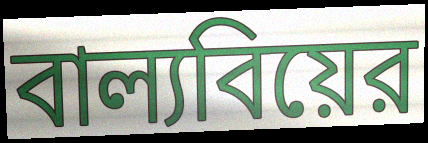
বাল্যবিয়ের